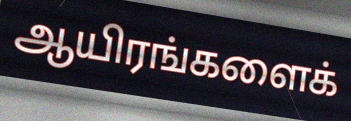
ஆயிரங்களைக்